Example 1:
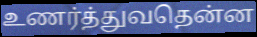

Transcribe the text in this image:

உணர்த்துவதென்ன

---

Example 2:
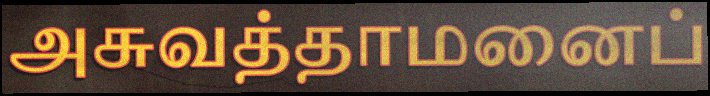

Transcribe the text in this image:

அசுவத்தாமனைப்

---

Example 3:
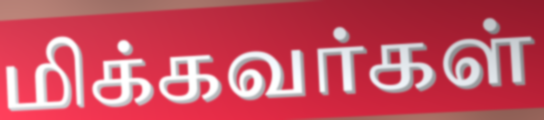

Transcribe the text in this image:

மிக்கவர்கள்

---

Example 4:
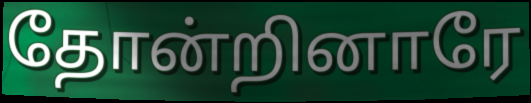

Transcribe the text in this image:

தோன்றினாரே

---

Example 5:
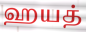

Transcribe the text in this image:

ஹயத்